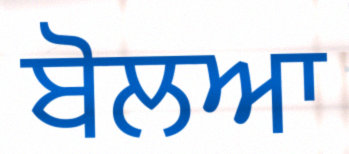
ਬੋਲਆ